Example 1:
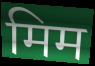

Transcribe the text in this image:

मिम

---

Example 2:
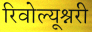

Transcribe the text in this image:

रिवोल्यूश्नरी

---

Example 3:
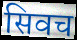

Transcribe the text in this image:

सिवच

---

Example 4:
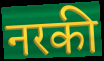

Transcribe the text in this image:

नरकी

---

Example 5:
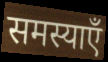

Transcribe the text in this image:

समस्याएँ